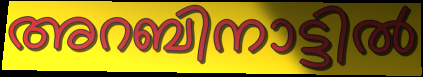
അറബിനാട്ടിൽ